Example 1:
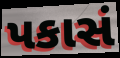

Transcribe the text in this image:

પકાસં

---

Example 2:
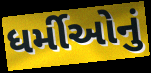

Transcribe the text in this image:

ધર્મીઓનું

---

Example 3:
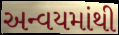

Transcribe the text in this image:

અન્વયમાંથી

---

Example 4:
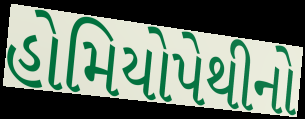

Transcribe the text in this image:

હોમિયોપેથીનો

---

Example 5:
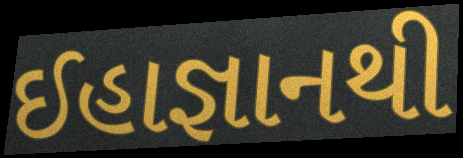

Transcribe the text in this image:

ઈહાજ્ઞાનથી